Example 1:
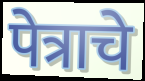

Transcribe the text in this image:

पेत्राचे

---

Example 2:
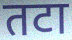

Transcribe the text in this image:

तटा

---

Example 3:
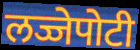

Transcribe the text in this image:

लज्जेपोटी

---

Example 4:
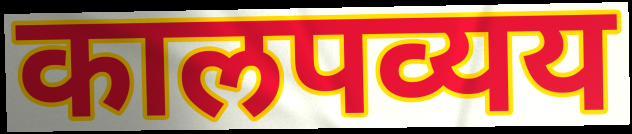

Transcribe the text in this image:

कालपव्यय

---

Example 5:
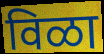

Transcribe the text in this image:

विळा